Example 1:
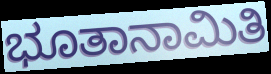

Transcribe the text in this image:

ಭೂತಾನಾಮಿತಿ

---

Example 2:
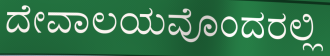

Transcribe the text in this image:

ದೇವಾಲಯವೊಂದರಲ್ಲಿ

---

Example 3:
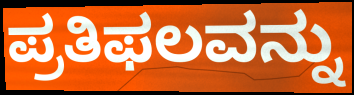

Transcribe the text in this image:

ಪ್ರತಿಫಲವನ್ನು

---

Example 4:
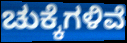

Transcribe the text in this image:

ಚುಕ್ಕೆಗಳಿವೆ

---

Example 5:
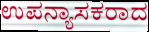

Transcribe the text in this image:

ಉಪನ್ಯಾಸಕರಾದ